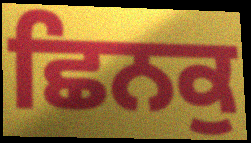
ਛਿਨਕੁ